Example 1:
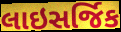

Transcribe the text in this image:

લાઇસર્જિક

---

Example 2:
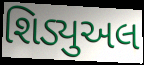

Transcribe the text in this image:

શિડ્યુઅલ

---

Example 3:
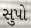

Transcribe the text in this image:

સુપો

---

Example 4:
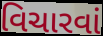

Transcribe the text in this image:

વિચારવાં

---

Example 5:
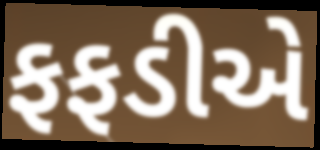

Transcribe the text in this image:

ફફડીએ